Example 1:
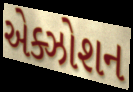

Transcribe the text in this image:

એક્ઝોશન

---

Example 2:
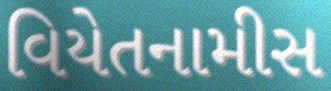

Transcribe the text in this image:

વિયેતનામીસ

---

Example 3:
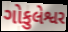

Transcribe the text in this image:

ગોકુલેશ્વર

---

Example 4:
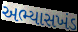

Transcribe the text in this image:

અભ્યાસખંડ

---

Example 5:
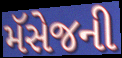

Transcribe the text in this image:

મૅસેજની